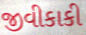
જીવીકાકી